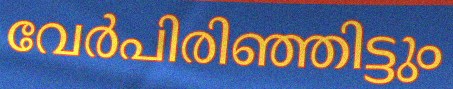
വേർപിരിഞ്ഞിട്ടും